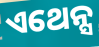
ଏଥେନ୍ସ